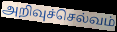
அறிவுச்செல்வம்